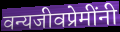
वन्यजीवप्रेमींनी